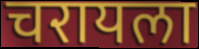
चरायला